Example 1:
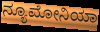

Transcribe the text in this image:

ನ್ಯೂಮೋನಿಯಾ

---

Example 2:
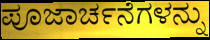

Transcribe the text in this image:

ಪೂಜಾರ್ಚನೆಗಳನ್ನು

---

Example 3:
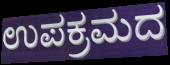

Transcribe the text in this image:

ಉಪಕ್ರಮದ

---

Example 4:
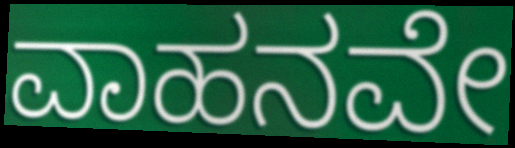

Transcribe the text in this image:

ವಾಹನವೇ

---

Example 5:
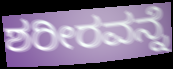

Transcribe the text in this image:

ಶರೀರವನ್ನೆ